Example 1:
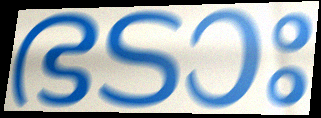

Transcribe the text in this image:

ഭടാഃ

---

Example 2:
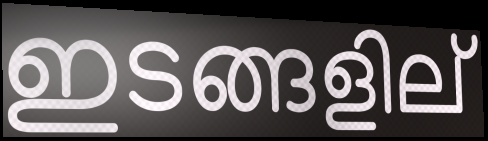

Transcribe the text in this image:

ഇടങ്ങളില്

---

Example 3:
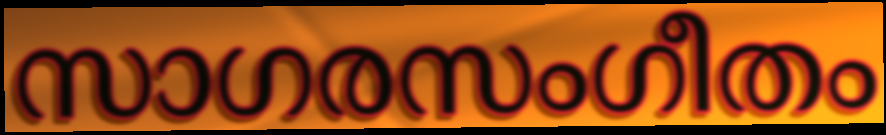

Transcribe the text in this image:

സാഗരസംഗീതം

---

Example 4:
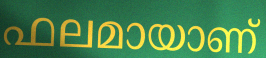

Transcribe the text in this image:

ഫലമായാണ്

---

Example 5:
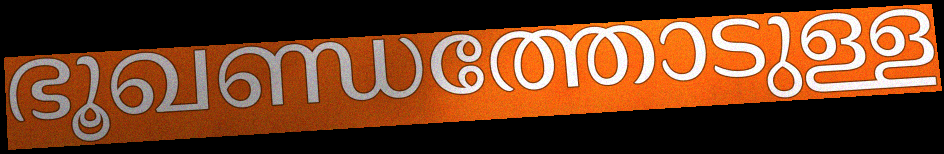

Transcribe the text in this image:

ഭൂഖണ്ഡത്തോടുള്ള